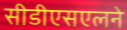
सीडीएसएलने